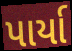
પાર્યા